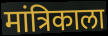
मांत्रिकाला